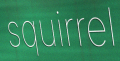
squirrel